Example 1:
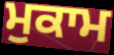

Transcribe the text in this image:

ਮੁਕਾਮ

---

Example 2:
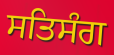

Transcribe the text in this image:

ਸਤਿਸੰਗ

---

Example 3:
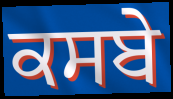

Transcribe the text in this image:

ਕਸਬੇ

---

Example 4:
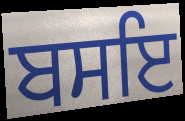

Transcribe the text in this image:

ਬਸਇ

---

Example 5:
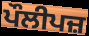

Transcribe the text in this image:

ਪੌਲੀਪਜ਼